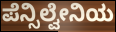
ಪೆನ್ಸಿಲ್ವೇನಿಯ